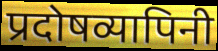
प्रदोषव्यापिनी